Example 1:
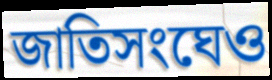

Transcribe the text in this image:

জাতিসংঘেও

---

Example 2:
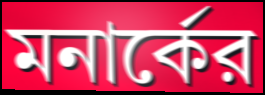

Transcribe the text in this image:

মনার্কের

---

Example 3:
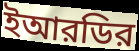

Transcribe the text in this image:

ইআরডির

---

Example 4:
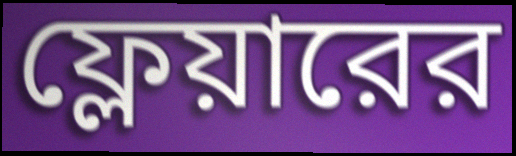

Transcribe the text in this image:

ফ্লেয়ারের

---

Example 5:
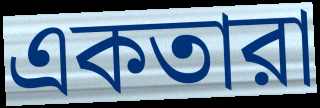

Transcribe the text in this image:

একতারা